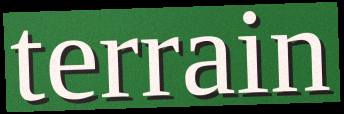
terrain